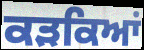
ਕੜਕਿਆਂ